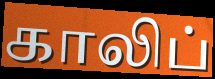
காலிப்